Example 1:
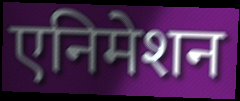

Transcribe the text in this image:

एनिमेशन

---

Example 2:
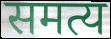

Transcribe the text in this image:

समत्य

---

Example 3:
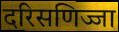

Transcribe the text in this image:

दरिसणिज्जा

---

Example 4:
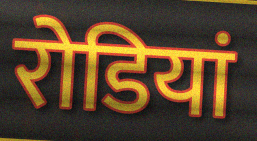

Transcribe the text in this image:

रोडियां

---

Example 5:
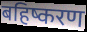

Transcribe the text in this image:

बहिष्करण